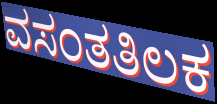
ವಸಂತತಿಲಕ